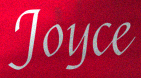
Joyce